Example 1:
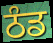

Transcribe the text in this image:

ਠੰਡ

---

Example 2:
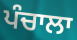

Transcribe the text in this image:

ਪੰਚਾਲਾ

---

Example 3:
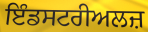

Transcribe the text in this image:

ਇੰਡਸਟਰੀਅਲਜ਼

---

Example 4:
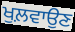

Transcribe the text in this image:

ਖੁਲ਼ਵਾਉਣ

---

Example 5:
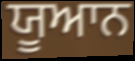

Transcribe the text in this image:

ਯੂਆਨ